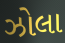
ઝોલા